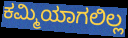
ಕಮ್ಮಿಯಾಗಲಿಲ್ಲ